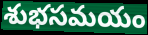
శుభసమయం